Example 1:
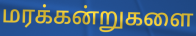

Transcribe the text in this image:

மரக்கன்றுகளை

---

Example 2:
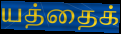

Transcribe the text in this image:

யத்தைக்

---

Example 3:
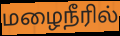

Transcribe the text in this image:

மழைநீரில்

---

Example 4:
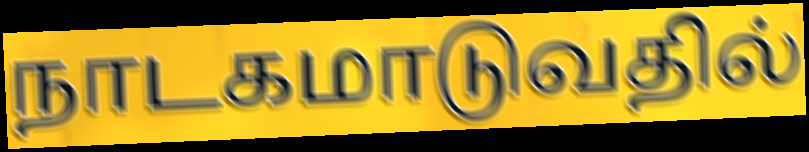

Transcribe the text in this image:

நாடகமாடுவதில்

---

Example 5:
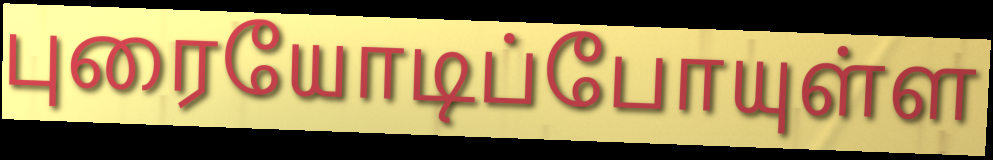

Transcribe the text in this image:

புரையோடிப்போயுள்ள